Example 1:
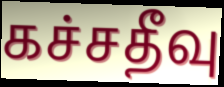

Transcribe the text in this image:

கச்சதீவு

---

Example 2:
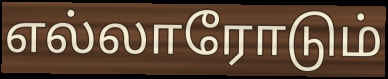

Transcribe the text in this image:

எல்லாரோடும்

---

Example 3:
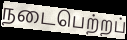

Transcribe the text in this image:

நடைபெற்றப்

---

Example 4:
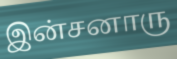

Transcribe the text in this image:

இன்சனாரு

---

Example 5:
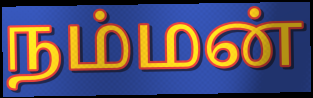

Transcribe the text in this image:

நம்மன்